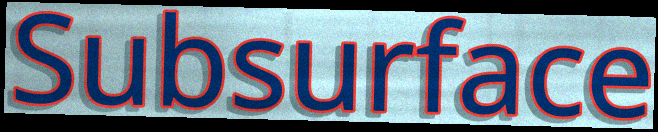
Subsurface